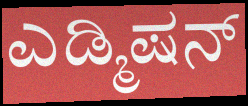
ಎಡ್ಮಿಷನ್